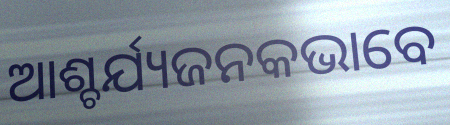
ଆଶ୍ଚର୍ଯ୍ୟଜନକଭାବେ